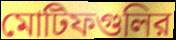
মোটিফগুলির